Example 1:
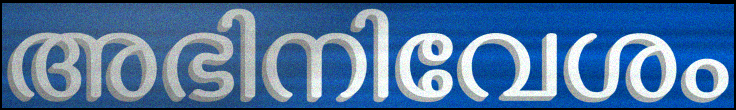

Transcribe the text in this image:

അഭിനിവേശം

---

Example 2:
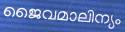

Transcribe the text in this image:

ജൈവമാലിന്യം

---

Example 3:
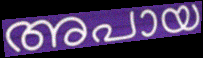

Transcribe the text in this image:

അപായ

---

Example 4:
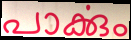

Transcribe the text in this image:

പാൎക്കും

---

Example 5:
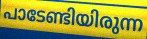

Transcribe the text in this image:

പാടേണ്ടിയിരുന്ന